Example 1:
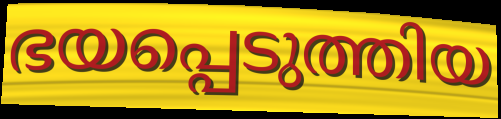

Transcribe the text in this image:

ഭയപ്പെടുത്തിയ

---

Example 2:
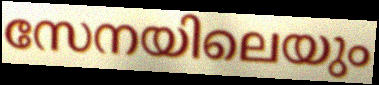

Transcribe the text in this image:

സേനയിലെയും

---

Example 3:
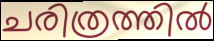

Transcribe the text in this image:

ചരിത്രത്തിൽ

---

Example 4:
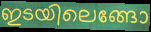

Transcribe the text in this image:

ഇടയിലെങ്ങോ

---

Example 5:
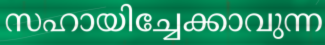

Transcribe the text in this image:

സഹായിച്ചേക്കാവുന്ന